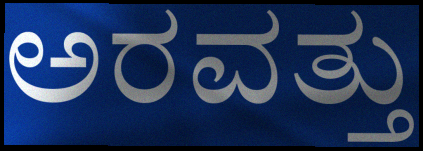
ಅರವತ್ತು